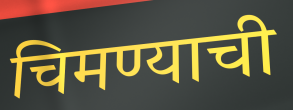
चिमण्याची